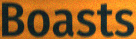
Boasts